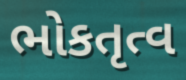
ભોકતૃત્વ